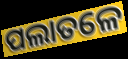
ପଲାତଳେ